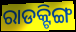
ରାଡକ୍ଟିଙ୍ଗ